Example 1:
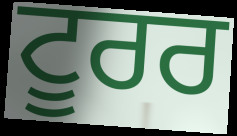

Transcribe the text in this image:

ਟੂਰਰ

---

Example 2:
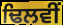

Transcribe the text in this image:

ਢਿਲਵੀਂ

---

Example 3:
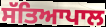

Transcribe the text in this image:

ਸੱਤਿਆਪਾਲ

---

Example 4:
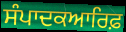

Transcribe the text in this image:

ਸੰਪਾਦਕਆਰਿਫ਼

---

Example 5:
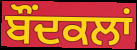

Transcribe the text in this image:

ਬੌਂਦਕਲਾਂ